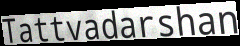
Tattvadarshan